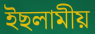
ইছলামীয়